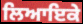
ਲਿਆਇਕੇ